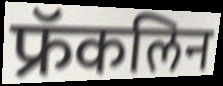
फ्रॅकलिन